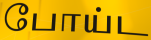
போய்ட